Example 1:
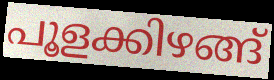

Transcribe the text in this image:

പൂളക്കിഴങ്ങ്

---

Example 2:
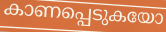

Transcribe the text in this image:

കാണപ്പെടുകയോ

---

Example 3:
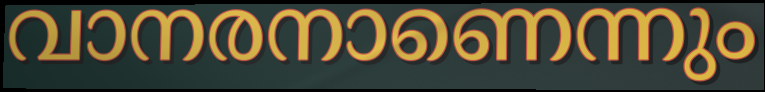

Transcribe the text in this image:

വാനരനാണെന്നും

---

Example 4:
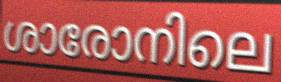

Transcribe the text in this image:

ശാരോനിലെ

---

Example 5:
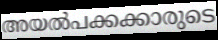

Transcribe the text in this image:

അയൽപക്കക്കാരുടെ